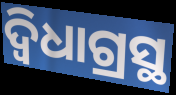
ଦ୍ବିଧାଗ୍ରସ୍ଥ